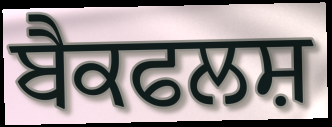
ਬੈਕਫਲਸ਼